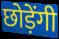
छोड़ेंगी